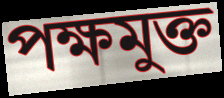
পক্ষমুক্ত